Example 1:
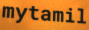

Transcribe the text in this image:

mytamil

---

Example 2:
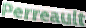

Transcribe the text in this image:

Perreault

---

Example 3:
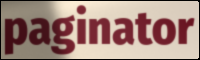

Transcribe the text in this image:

paginator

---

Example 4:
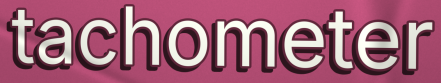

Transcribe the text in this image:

tachometer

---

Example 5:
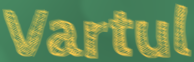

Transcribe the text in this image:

Vartul